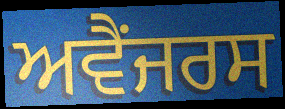
ਅਵੈਂਜਰਸ